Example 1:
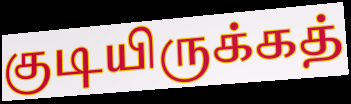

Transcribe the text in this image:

குடியிருக்கத்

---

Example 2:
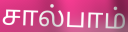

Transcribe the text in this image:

சால்பாம்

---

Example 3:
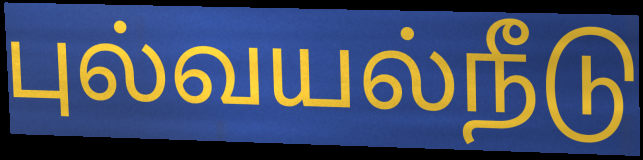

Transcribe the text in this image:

புல்வயல்நீடு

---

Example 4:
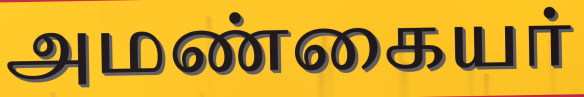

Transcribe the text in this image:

அமண்கையர்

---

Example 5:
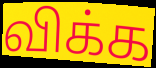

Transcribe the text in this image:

விக்க